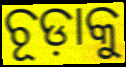
ଚୂଡ଼ାକୁ